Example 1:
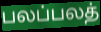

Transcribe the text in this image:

பலப்பலத்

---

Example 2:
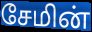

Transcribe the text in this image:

சேமின்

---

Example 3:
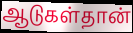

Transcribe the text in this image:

ஆடுகள்தான்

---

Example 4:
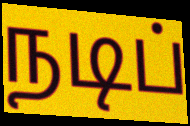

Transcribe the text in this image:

நடிப்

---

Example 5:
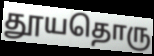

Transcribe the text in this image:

தூயதொரு